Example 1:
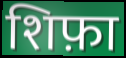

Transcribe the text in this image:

शिफ़ा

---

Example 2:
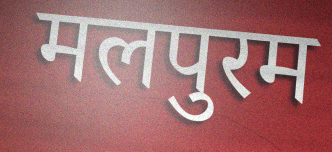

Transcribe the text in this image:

मलपुरम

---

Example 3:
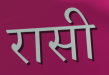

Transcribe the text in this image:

रासी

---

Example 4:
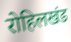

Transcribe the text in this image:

रोहिलखंड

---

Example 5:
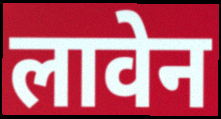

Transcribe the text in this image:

लावेन